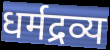
धर्मद्रव्य